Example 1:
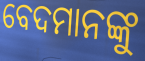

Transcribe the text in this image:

ବେଦମାନଙ୍କୁ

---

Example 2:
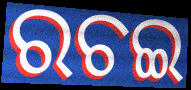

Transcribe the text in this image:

ରଚଇ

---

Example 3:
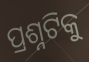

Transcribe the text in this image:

ପ୍ରଶ୍ନଟିକୁ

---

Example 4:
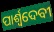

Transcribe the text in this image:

ପାର୍ଶ୍ୱଦେବୀ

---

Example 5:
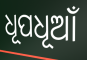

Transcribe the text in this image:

ଧୂପଧୂଆଁ